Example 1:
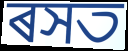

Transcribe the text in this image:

ৰসত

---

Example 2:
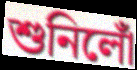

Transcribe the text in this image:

শুনিলোঁ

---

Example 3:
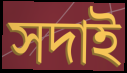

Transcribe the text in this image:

সদাই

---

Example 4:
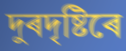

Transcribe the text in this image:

দুৰদৃষ্টিৰে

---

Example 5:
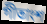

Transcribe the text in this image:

গীতাংশ